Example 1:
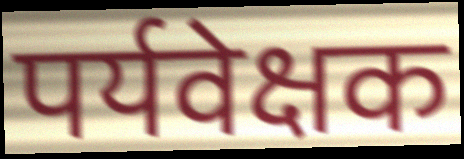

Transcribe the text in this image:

पर्यवेक्षक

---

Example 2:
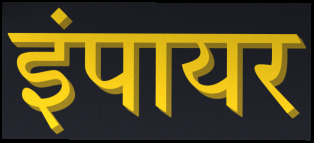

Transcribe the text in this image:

इंपायर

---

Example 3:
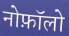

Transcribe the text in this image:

नोफ़ॉलो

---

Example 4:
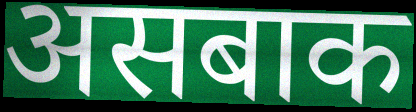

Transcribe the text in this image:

असबाक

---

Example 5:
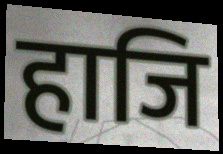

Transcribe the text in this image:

हाजि